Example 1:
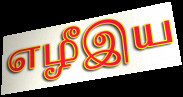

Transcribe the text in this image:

எழீஇய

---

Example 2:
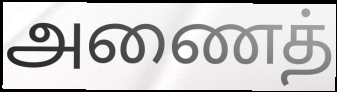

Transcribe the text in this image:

அணைத்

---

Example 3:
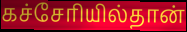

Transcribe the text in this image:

கச்சேரியில்தான்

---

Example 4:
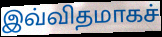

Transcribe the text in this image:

இவ்விதமாகச்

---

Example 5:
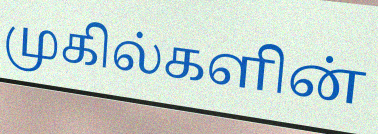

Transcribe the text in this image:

முகில்களின்